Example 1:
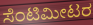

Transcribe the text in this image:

ಸೆಂಟಿಮೀಟರ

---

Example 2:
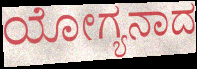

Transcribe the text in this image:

ಯೋಗ್ಯನಾದ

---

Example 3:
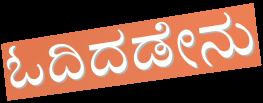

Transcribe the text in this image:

ಓದಿದಡೇನು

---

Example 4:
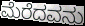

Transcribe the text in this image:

ಮೆರೆದವನು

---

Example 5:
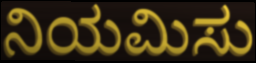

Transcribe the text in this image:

ನಿಯಮಿಸು